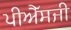
ਪੀਐੱਸਜੀ